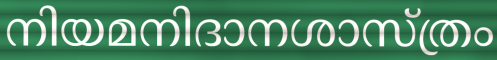
നിയമനിദാനശാസ്ത്രം